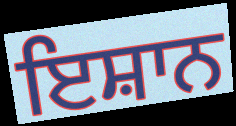
ਇਸ਼ਾਨ